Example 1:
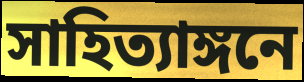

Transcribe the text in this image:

সাহিত্যাঙ্গনে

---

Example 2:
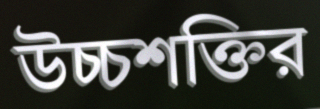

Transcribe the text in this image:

উচ্চশক্তির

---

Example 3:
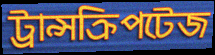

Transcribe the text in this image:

ট্রান্সক্রিপটেজ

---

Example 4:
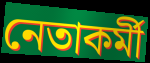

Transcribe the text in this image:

নেতাকর্মী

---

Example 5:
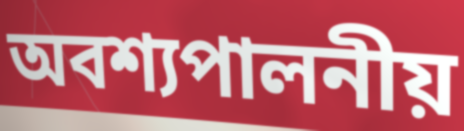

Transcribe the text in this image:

অবশ্যপালনীয়